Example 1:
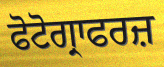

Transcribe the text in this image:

ਫੋਟੋਗ੍ਰਾਫਰਜ਼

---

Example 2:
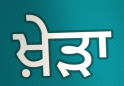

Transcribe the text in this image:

ਖ਼ੇੜਾ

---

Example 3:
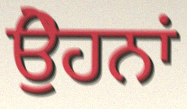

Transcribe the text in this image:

ਉੇਹਨਾਂ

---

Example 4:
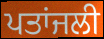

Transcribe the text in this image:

ਪਤਾਂਜਲੀ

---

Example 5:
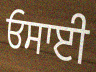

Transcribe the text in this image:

ਓਸਾਈ